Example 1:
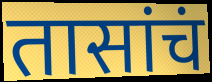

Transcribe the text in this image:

तासांचं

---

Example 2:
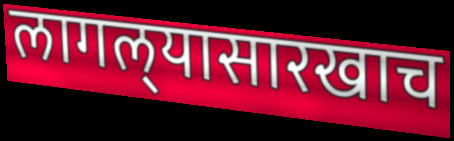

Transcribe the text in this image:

लागल्यासारखाच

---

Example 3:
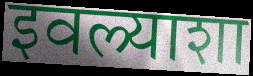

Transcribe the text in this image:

इवल्याशा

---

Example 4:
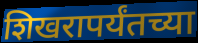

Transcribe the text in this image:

शिखरापर्यंतच्या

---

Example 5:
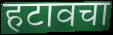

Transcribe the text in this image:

हटावचा